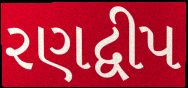
રણદ્વીપ